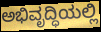
ಅಭಿವೃದ್ಧಿಯಲ್ಲಿ